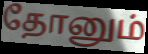
தோனும்